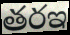
తరఇ